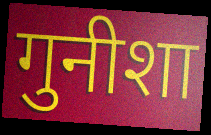
गुनीशा